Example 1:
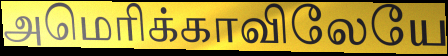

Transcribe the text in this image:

அமெரிக்காவிலேயே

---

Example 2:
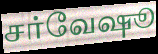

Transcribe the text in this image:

சர்வேஷூ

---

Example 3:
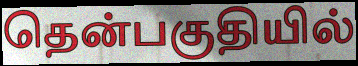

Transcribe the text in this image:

தென்பகுதியில்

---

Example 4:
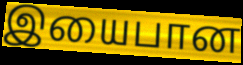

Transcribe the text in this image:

இயைபான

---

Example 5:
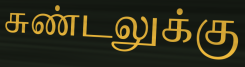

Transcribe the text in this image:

சுண்டலுக்கு